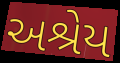
અશ્રેય